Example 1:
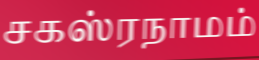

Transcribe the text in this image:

சகஸ்ரநாமம்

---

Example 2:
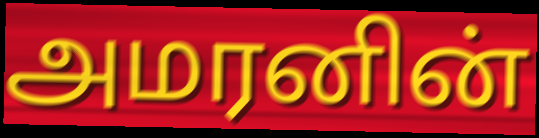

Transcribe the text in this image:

அமரனின்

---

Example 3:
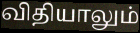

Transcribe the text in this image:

விதியாலும்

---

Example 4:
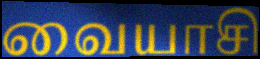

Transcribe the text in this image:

வையாசி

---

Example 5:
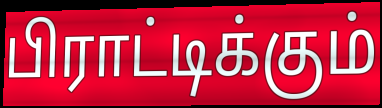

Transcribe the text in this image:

பிராட்டிக்கும்